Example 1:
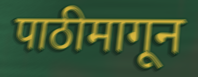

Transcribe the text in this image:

पाठीमागून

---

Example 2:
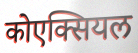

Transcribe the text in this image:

कोएक्सियल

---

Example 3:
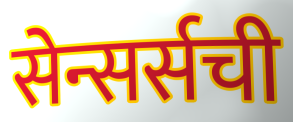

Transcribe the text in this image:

सेन्सर्सची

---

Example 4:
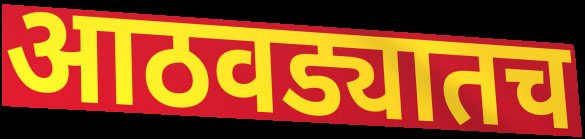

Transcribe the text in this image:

आठवड्यातच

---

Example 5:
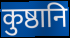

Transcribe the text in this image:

कुष्ठानि